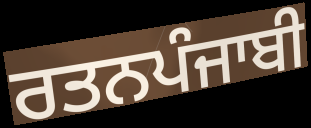
ਰਤਨਪੰਜਾਬੀ